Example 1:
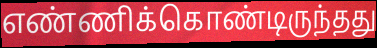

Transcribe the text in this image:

எண்ணிக்கொண்டிருந்தது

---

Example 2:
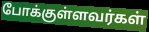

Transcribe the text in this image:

போக்குள்ளவர்கள்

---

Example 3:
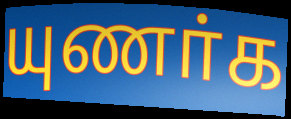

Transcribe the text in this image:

யுணர்க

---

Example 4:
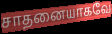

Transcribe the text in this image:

சாதனையாகவே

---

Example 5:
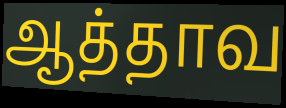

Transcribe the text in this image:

ஆத்தாவ